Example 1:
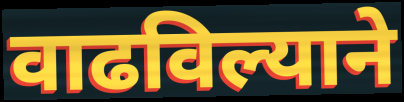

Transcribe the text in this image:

वाढविल्याने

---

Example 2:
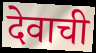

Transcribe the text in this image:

देवाची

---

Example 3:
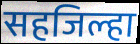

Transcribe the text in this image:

सहजिल्हा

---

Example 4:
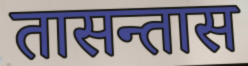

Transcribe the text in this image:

तासन्तास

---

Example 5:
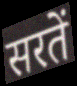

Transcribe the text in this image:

सरतें